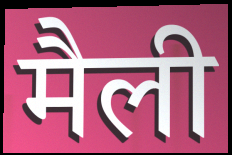
मैली